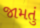
જામતું